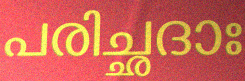
പരിച്ഛദാഃ